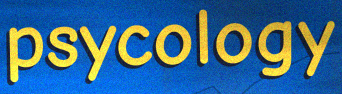
psycology